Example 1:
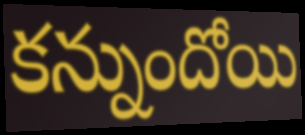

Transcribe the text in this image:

కన్నుందోయి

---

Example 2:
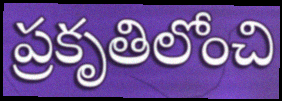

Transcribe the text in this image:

ప్రకృతిలోంచి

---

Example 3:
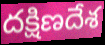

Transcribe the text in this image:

దక్షిణదేశ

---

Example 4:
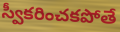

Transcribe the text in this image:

స్వీకరించకపోతే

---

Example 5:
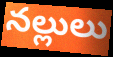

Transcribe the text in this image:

నల్లులు